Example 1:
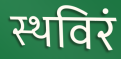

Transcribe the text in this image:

स्थविरं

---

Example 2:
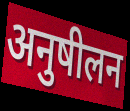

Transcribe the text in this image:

अनुषीलन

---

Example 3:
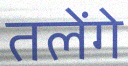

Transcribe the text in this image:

तलेंगे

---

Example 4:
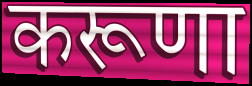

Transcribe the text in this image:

करूणा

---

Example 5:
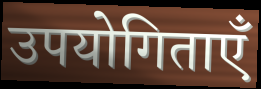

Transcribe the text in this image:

उपयोगिताएँ